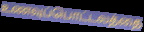
உணவுப்பொட்டலத்தை